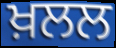
ਖ਼ਲਲ